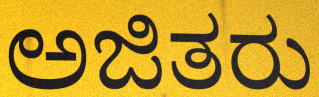
ಅಜಿತರು